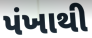
પંખાથી